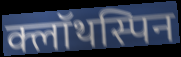
क्लॉथस्पिन